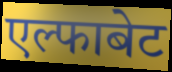
एल्फाबेट